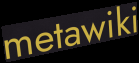
metawiki